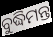
ବୁଦ୍ଧିମନ୍ତ